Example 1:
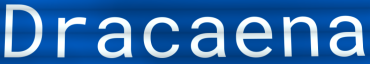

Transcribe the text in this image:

Dracaena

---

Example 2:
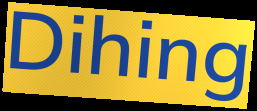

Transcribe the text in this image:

Dihing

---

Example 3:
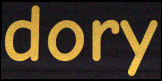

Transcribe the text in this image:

dory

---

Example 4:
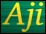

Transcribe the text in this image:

Aji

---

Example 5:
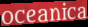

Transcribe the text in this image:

oceanica